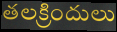
తలక్రిందులు